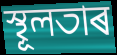
স্থূলতাৰ